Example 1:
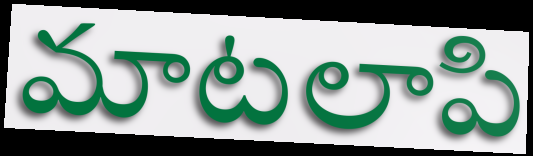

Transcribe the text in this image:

మాటలాపి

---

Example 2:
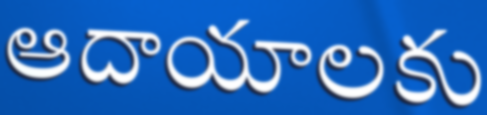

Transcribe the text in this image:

ఆదాయాలకు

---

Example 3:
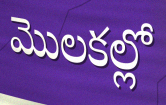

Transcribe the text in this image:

మొలకల్లో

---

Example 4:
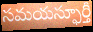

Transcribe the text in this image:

సమయస్ఫూర్తీ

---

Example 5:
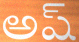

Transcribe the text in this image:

అష్